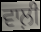
ਵਾਲ਼ੀ